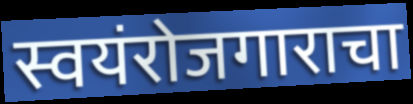
स्वयंरोजगाराचा